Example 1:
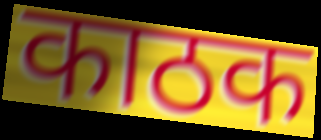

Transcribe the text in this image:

काठक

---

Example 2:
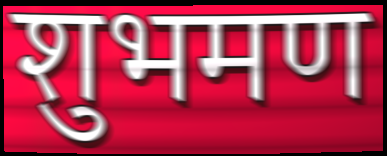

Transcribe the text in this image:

शुभमण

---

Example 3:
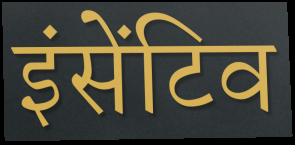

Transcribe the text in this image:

इंसेंटिव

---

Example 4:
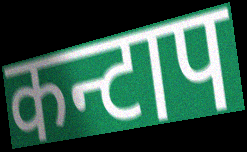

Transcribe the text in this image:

कन्टाप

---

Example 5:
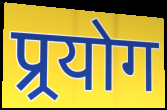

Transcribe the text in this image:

प्र्रयोग